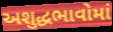
અશુદ્ધભાવોમાં